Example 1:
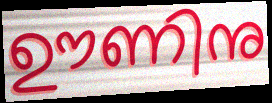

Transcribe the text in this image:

ഊണിനു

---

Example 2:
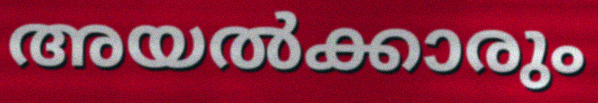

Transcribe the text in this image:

അയൽക്കാരും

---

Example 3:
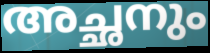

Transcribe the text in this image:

അച്ഛനും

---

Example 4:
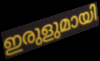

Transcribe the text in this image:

ഇരുളുമായി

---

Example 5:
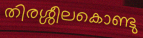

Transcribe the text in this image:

തിരശ്ശീലകൊണ്ടു